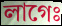
লাগেঃ